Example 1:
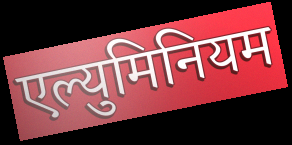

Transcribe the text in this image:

एल्युमिनियम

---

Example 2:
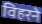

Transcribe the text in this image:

विहरने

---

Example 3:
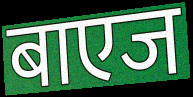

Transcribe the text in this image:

बाएज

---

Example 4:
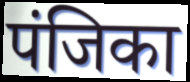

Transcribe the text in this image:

पंजिका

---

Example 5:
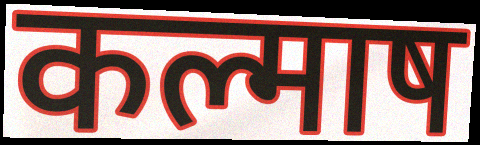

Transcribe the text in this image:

कल्माष